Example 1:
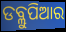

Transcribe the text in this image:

ଡବ୍ଲୁପିଆର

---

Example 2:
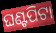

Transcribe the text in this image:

ଘଣ୍ଟପିଟା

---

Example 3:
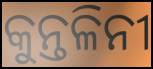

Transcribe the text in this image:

କୁନ୍ତଳିନୀ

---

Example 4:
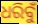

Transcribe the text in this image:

ଧରିବୁଁ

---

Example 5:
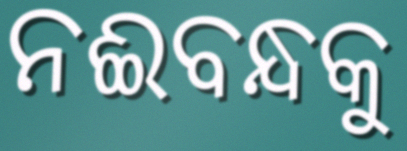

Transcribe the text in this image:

ନଈବନ୍ଧକୁ